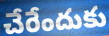
చేరేందుకు